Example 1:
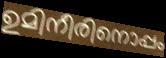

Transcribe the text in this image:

ഉമിനീരിനൊപ്പം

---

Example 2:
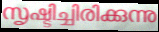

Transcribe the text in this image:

സൃഷ്ടിച്ചിരിക്കുന്നു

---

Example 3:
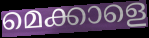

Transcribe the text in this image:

മെക്കാളെ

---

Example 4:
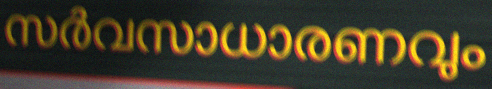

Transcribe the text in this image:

സർവസാധാരണവും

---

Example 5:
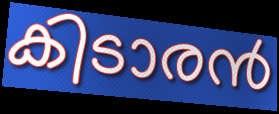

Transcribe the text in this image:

കിടാരൻ